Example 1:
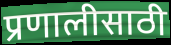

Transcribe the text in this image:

प्रणालीसाठी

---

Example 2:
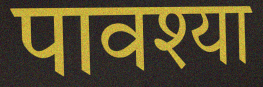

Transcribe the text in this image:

पावश्या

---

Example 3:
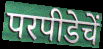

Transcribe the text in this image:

परपीडेचें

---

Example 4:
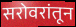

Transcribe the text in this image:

सरोवरांतून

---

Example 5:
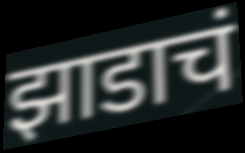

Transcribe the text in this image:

झाडाचं